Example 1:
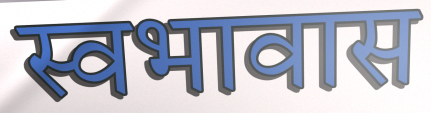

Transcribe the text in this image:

स्वभावास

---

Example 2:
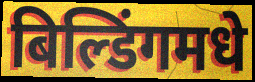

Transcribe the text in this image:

बिल्डिंगमधे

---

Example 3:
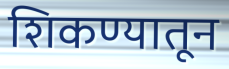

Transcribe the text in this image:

शिकण्यातून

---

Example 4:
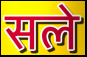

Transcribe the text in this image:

सले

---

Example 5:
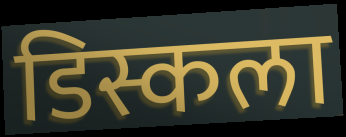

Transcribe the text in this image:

डिस्कला